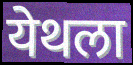
येथला